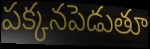
పక్కనపెడుతూ